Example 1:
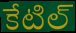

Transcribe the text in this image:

కేటిల్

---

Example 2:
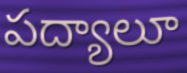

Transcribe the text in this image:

పద్యాలూ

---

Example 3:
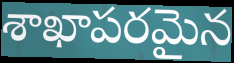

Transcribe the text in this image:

శాఖాపరమైన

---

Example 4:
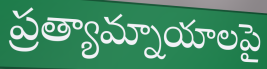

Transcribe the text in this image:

ప్రత్యామ్నాయాలపై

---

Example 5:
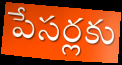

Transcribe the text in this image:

పేసర్లకు